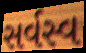
સર્વસ્વ